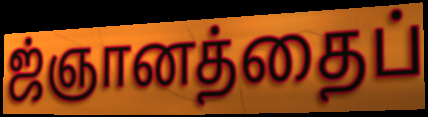
ஜ்ஞானத்தைப்